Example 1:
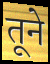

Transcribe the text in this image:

तूने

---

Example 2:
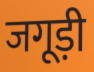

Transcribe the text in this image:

जगूड़ी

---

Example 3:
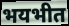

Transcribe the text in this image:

भयभीत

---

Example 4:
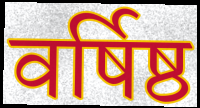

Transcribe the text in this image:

वर्षिष्ठ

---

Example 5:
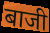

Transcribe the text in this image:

बाजी